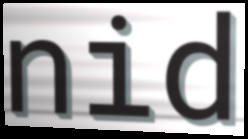
nid